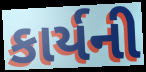
કાર્યની